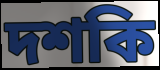
দশকি